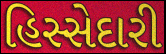
હિસ્સેદારી